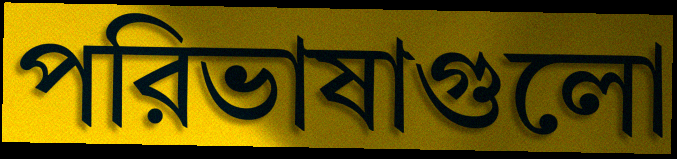
পরিভাষাগুলো